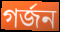
গৰ্জন